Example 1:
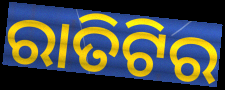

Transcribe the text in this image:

ରାତିଟିର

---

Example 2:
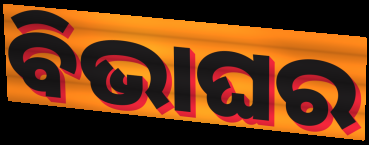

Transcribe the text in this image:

ବିଭାଘର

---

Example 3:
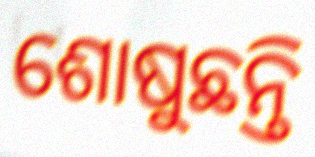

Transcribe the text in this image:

ଶୋଷୁଛନ୍ତି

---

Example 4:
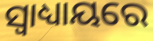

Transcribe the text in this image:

ସ୍ଵାଧ୍ୟାୟରେ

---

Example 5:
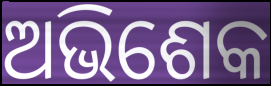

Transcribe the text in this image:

ଅଭିଶେକ